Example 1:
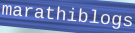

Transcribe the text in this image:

marathiblogs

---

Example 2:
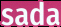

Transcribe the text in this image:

sada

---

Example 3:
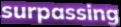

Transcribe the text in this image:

surpassing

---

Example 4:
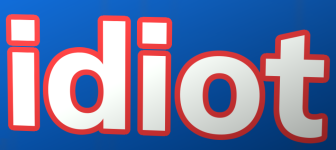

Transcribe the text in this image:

idiot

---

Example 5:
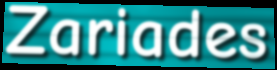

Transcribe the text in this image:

Zariades